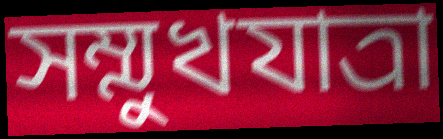
সম্মুখযাত্রা